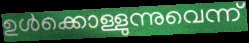
ഉൾക്കൊള്ളുന്നുവെന്ന്